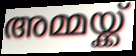
അമ്മയ്ക്ക്